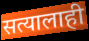
सत्यालाही